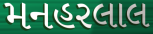
મનહરલાલ